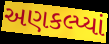
અણકલ્પ્યાં